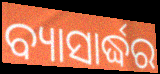
ବ୍ୟାସାର୍ଦ୍ଧର